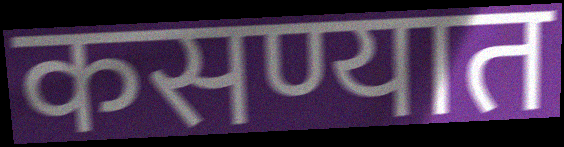
कसण्यात